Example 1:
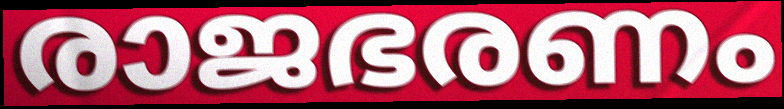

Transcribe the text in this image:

രാജഭരണം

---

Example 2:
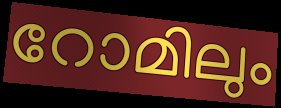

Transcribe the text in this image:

റോമിലും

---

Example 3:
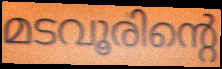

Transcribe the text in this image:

മടവൂരിന്റെ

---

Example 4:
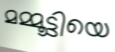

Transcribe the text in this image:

മമ്മൂട്ടിയെ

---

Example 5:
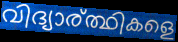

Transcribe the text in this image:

വിദ്യാര്ത്ഥികളെ